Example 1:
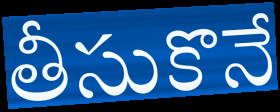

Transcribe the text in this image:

తీసుకొనే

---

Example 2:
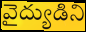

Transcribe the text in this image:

వైద్యుడిని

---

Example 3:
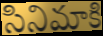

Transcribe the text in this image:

సినిమాకి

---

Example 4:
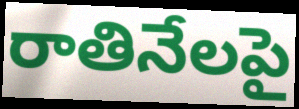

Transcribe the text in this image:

రాతినేలపై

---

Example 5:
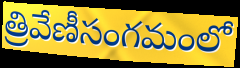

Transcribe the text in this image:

త్రివేణీసంగమంలో